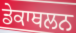
ਡੇਕਾਥਲਨ